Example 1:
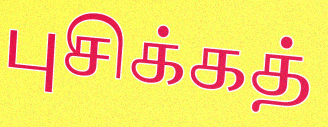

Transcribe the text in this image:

புசிக்கத்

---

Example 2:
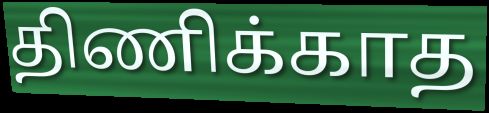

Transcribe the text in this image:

திணிக்காத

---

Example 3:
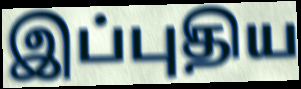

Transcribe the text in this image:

இப்புதிய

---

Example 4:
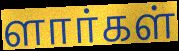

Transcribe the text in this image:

ளார்கள்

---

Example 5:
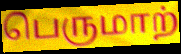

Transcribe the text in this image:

பெருமாற்